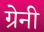
ग्रेनी